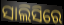
ସାଲିସିରେ